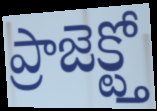
ప్రాజెక్ట్తో